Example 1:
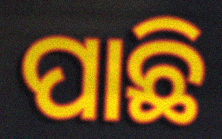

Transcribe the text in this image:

ପାଛି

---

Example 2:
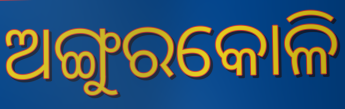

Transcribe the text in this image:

ଅଙ୍ଗୁରକୋଳି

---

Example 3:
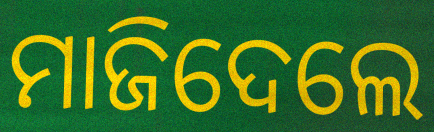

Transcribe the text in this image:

ମାଜିଦେଲେ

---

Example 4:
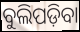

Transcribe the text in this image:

ବୁଲିପଡ଼ିବା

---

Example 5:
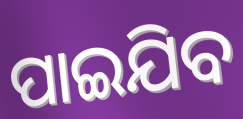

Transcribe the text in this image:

ପାଇଯିବ